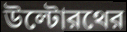
উল্টোরথের